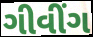
ગીવીંગ